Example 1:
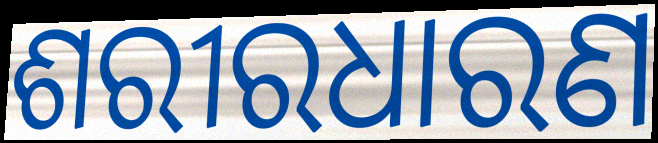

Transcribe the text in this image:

ଶରୀରଧାରଣ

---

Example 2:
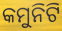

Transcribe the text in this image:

କମୁନିଟି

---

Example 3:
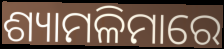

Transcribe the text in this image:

ଶ୍ୟାମଳିମାରେ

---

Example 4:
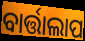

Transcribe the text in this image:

ବାର୍ତ୍ତାଲାପ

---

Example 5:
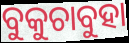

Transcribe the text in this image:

ବୁକୁଚାବୁହା